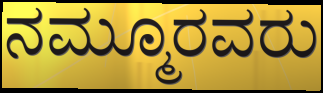
ನಮ್ಮೂರವರು